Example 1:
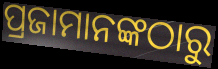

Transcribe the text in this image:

ପ୍ରଜାମାନଙ୍କଠାରୁ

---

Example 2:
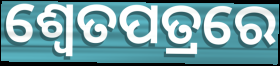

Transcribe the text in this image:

ଶ୍ଵେତପତ୍ରରେ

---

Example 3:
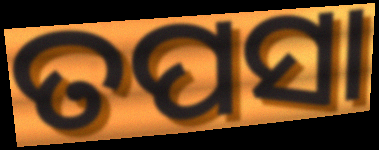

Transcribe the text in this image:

ତପସା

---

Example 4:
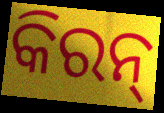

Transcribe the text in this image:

କିରନ୍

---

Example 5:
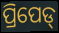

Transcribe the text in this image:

ପ୍ରିପେଡ୍